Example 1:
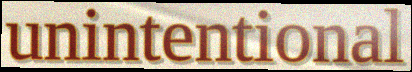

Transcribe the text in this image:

unintentional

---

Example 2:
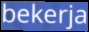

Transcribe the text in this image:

bekerja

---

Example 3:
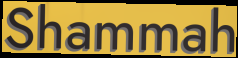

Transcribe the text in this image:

Shammah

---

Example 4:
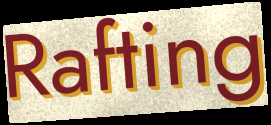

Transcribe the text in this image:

Rafting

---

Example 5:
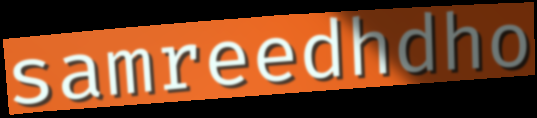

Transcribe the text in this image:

samreedhdho